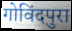
गोविंदपुरा